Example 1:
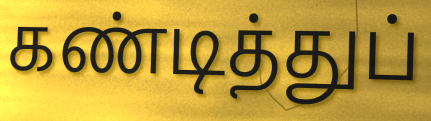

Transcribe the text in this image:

கண்டித்துப்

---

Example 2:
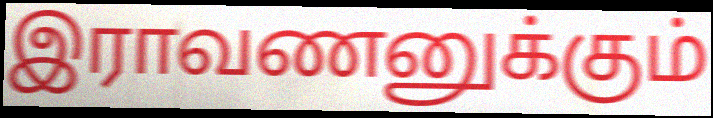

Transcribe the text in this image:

இராவணனுக்கும்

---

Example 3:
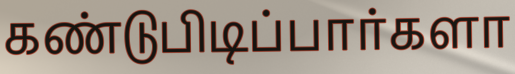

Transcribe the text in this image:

கண்டுபிடிப்பார்களா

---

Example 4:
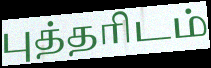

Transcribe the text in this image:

புத்தரிடம்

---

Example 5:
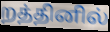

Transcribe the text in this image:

றத்தினில்